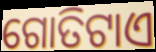
ଗୋତିଟାଏ